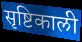
सृष्टिकाली